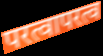
परत्वापरत्व